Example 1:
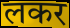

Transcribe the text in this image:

लकर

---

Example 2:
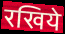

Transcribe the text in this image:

रखिये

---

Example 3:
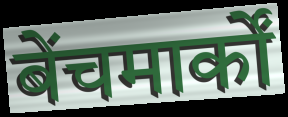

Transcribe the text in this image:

बेंचमार्कों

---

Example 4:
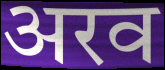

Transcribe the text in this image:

अरव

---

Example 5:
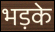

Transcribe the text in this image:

भड़के